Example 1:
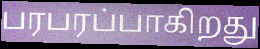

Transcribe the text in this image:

பரபரப்பாகிறது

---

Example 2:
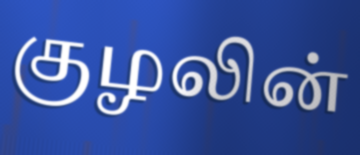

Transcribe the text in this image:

குழலின்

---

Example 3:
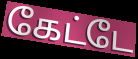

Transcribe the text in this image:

கேட்டே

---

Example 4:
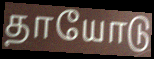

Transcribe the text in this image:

தாயோடு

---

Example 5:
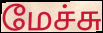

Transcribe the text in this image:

மேச்சு